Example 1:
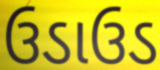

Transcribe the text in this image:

ઉડાઉડ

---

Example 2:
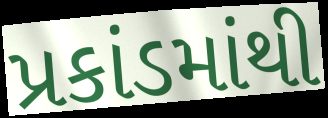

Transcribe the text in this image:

પ્રકાંડમાંથી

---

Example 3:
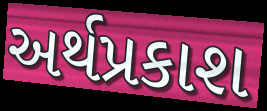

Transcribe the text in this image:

અર્થપ્રકાશ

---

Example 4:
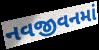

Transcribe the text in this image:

નવજીવનમાં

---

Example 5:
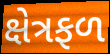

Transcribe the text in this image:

ક્ષેત્રફળ